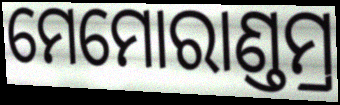
ମେମୋରାଣ୍ଡମ୍ର